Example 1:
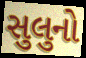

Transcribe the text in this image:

સુલુનો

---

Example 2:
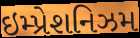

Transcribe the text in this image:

ઇમ્પ્રેશનિઝમ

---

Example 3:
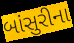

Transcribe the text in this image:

બાંસુરીના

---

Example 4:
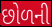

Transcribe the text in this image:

છોળની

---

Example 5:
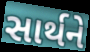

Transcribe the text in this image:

સાર્થને